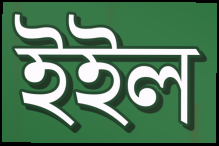
ইইল